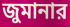
জুমানার